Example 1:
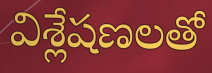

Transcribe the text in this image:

విశ్లేషణలతో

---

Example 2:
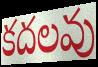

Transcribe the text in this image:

కదలవు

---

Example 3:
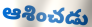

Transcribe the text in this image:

ఆశించడు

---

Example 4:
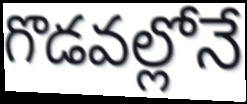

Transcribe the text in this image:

గొడవల్లోనే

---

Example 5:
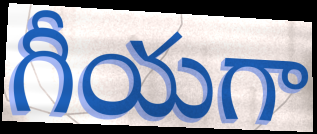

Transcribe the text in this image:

గీయగా